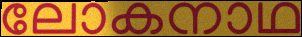
ലോകനാഥ